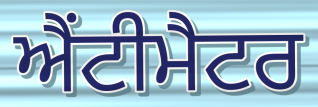
ਐਂਟੀਮੈਟਰ